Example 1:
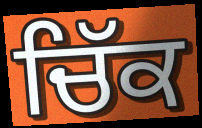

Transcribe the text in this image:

ਚਿੱਕ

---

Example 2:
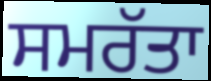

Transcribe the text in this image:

ਸਮਰੱਤਾ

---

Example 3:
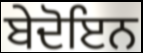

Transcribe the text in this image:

ਬੇਦੋਇਨ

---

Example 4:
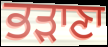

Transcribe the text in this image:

ਭੜਾਣਾ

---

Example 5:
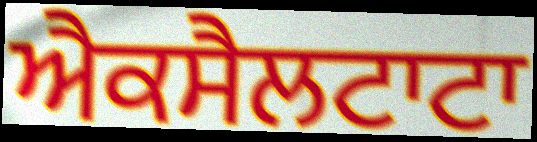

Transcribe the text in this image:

ਐਕਸੈਲਟਾਟਾ